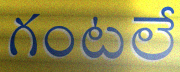
గంటలే